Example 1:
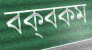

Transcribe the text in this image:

বক্‌বকম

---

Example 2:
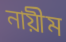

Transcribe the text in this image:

নায়ীম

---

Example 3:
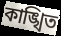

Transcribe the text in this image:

কাঙ্খিত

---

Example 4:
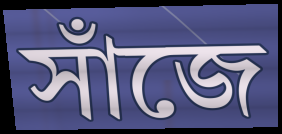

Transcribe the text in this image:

সাঁজে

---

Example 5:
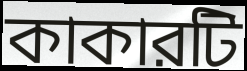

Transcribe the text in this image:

কাকারটি